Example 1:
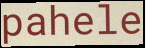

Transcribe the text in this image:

pahele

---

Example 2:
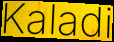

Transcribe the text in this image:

Kaladi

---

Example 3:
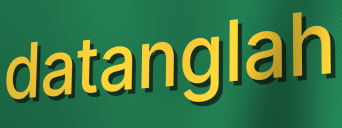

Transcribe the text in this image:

datanglah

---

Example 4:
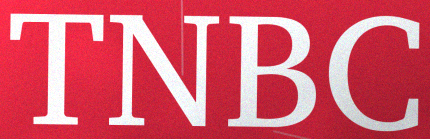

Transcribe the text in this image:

TNBC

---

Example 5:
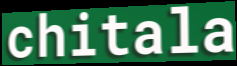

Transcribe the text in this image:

chitala